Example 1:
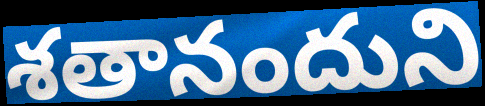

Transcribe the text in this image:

శతానందుని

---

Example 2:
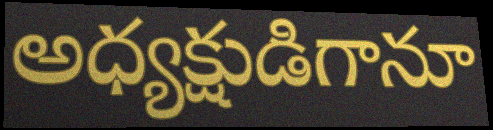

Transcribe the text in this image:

అధ్యక్షుడిగానూ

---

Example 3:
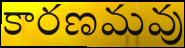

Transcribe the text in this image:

కారణమవు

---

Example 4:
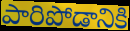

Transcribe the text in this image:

పారిపోడానికి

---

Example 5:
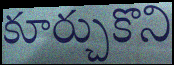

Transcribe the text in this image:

కూర్చుకొని